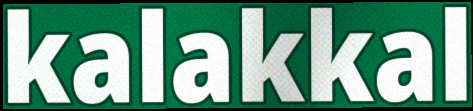
kalakkal